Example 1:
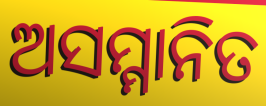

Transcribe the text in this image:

ଅସମ୍ମାନିତ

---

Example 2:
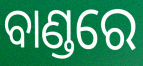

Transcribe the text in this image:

ବାଣ୍ଡରେ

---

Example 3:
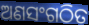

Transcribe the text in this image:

ଅଣସଂଗଠିତ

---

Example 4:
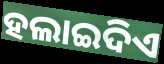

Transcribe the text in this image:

ହଲାଇଦିଏ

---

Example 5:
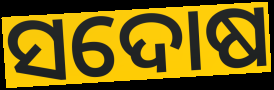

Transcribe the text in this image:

ସଦୋଷ